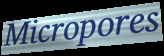
Micropores